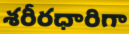
శరీరధారిగా